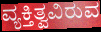
ವ್ಯಕ್ತಿತ್ವವಿರುವ